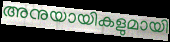
അനുയായികളുമായി